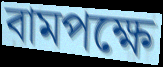
বামপক্ষে